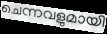
ചെന്നവളുമായി